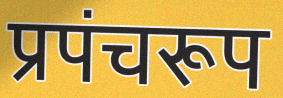
प्रपंचरूप